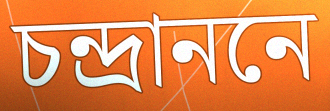
চন্দ্রাননে